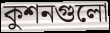
কুশনগুলো